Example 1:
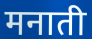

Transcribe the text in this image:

मनाती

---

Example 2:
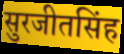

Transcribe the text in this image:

सुरजीतसिंह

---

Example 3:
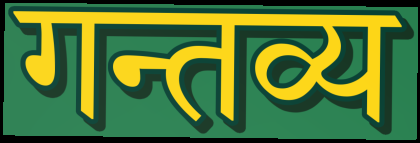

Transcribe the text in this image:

गन्तव्य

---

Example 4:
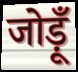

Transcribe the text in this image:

जोड़ूँ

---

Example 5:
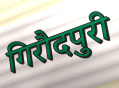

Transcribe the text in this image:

गिरौदपुरी